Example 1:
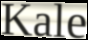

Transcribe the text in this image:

Kale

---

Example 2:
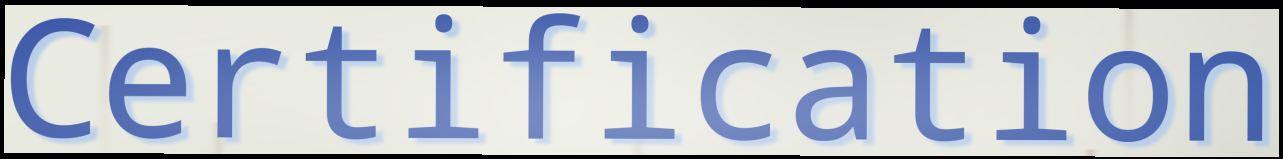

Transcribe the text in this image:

Certification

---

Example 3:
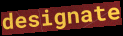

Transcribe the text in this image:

designate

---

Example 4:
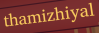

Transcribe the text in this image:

thamizhiyal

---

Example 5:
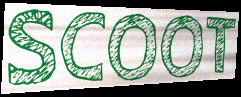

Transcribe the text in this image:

SCOOT